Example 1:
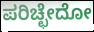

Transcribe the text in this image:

ಪರಿಚ್ಛೇದೋ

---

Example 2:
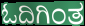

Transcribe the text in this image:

ಓದಿಗಿಂತ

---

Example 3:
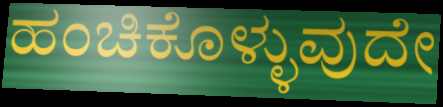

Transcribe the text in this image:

ಹಂಚಿಕೊಳ್ಳುವುದೇ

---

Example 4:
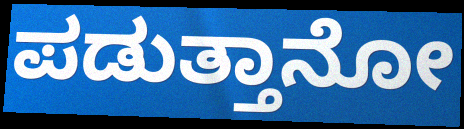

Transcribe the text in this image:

ಪಡುತ್ತಾನೋ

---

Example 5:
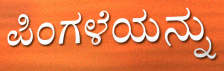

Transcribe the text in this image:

ಪಿಂಗಳೆಯನ್ನು